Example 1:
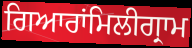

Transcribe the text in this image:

ਗਿਆਰਾਂਮਿਲੀਗ੍ਰਾਮ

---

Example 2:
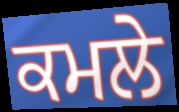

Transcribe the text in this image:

ਕਮਲੇ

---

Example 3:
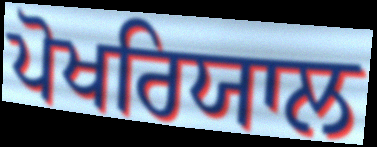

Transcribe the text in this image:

ਪੋਖਰਿਯਾਲ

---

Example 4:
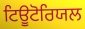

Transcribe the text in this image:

ਟਿਊਟੋਰਿਯਲ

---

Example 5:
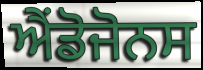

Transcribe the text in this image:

ਐਂਡੋਜੋਨਸ